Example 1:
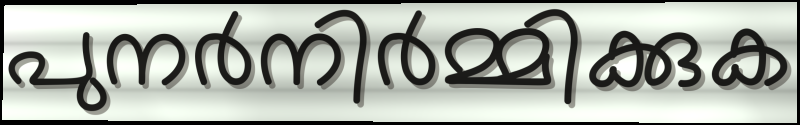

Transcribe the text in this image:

പുനർനിർമ്മിക്കുക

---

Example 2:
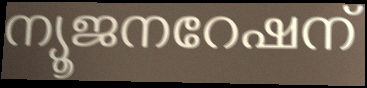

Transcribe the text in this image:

ന്യൂജനറേഷന്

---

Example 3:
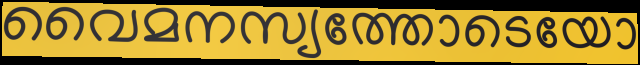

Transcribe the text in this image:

വൈമനസ്യത്തോടെയോ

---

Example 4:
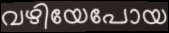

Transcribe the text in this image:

വഴിയേപോയ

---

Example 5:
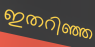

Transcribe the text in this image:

ഇതറിഞ്ഞ